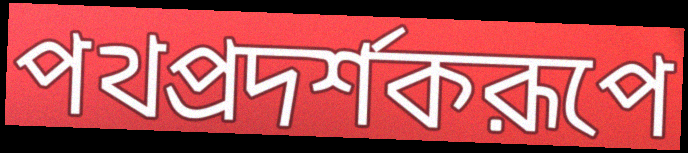
পথপ্রদর্শকরূপে